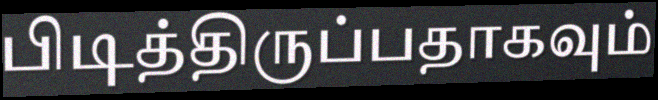
பிடித்திருப்பதாகவும்